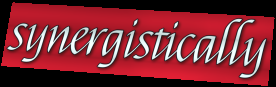
synergistically